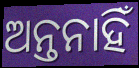
ଅନ୍ତନାହିଁ